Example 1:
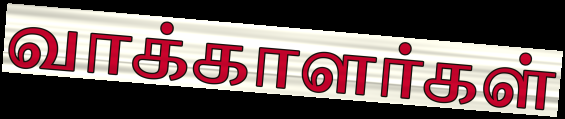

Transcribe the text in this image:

வாக்காளர்கள்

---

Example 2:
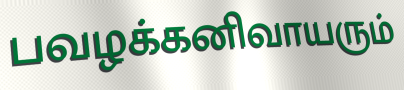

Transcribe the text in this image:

பவழக்கனிவாயரும்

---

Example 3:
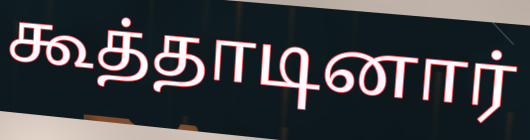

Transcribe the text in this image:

கூத்தாடினார்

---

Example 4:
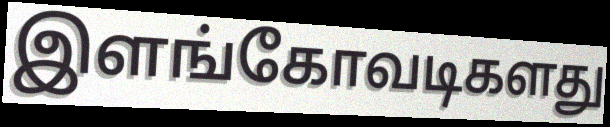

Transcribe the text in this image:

இளங்கோவடிகளது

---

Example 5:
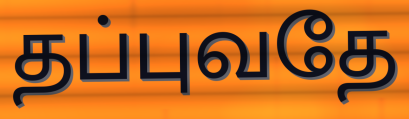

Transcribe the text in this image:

தப்புவதே